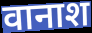
वानाश